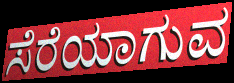
ಸೆರೆಯಾಗುವ